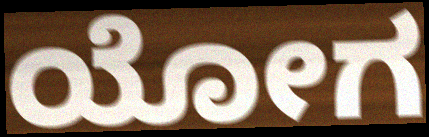
ಯೋಗ